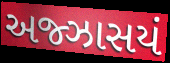
અજ્ઝાસયં